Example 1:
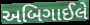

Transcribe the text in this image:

અબિગાઈલે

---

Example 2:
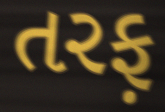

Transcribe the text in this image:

તરફ઼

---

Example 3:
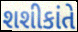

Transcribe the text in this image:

શશીકાંતે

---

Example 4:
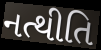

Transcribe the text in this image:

નત્થીતિ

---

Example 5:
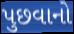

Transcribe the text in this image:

પુછવાનો